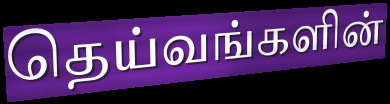
தெய்வங்களின்